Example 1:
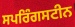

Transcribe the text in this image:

ਸਪਰਿੰਗਸਟੀਨ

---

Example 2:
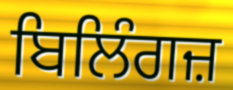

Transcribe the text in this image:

ਬਿਲਿੰਗਜ਼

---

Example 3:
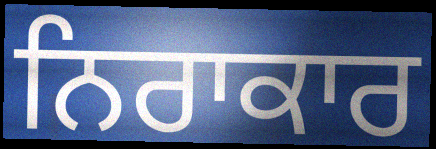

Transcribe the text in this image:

ਨਿਰਾਕਾਰ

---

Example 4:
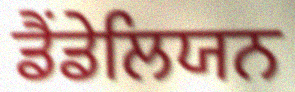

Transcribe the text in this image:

ਡੈਂਡੇਲਿਯਨ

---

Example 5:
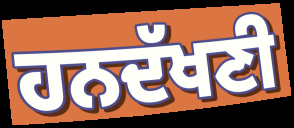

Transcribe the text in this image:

ਹਨਦੱਖਣੀ